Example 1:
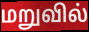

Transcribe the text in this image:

மறுவில்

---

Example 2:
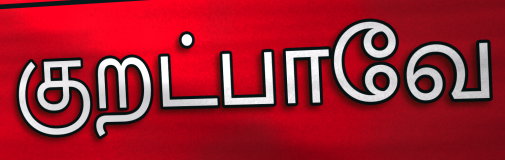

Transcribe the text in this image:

குறட்பாவே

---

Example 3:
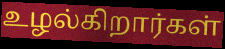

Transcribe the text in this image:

உழல்கிறார்கள்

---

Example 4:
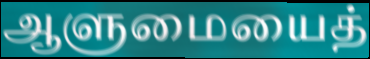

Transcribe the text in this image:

ஆளுமையைத்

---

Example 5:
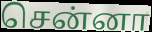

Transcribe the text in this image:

சென்னா